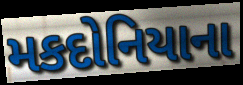
મકદોનિયાના